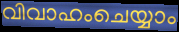
വിവാഹംചെയ്യാം